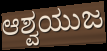
ಆಶ್ವಯುಜ